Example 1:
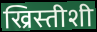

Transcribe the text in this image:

ख्रिस्तीशी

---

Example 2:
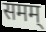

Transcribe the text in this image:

समम्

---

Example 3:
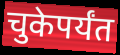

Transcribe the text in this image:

चुकेपर्यंत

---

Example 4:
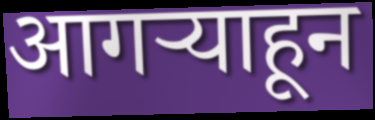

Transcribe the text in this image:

आगऱ्याहून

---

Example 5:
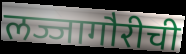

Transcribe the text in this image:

लज्जागौरीची